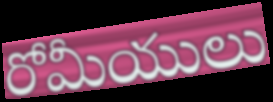
రోమీయులు